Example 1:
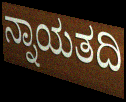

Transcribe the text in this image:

ನ್ನಾಯತದಿ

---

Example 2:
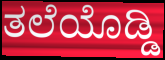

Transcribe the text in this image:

ತಲೆಯೊಡ್ಡಿ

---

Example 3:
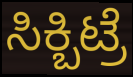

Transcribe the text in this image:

ಸಿಕ್ಬಿಟ್ರೆ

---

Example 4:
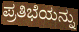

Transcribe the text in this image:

ಪ್ರತಿಭೆಯನ್ನು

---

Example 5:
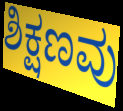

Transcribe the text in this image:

ಶಿಕ್ಷಣವು